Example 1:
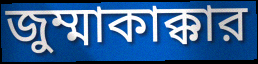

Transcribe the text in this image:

জুম্মাকাক্কার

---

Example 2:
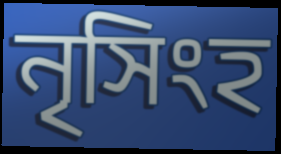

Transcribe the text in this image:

নৃসিংহ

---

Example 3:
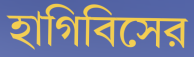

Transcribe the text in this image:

হাগিবিসের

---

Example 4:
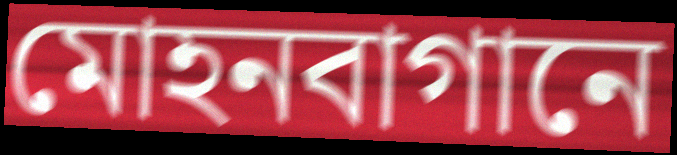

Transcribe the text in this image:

মোহনবাগানে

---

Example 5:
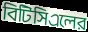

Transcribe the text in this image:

বিটিসিএলের